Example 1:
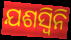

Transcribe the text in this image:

ଯଶସ୍ୱିନି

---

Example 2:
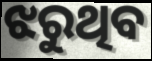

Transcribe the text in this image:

ଝରୁଥିବ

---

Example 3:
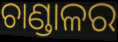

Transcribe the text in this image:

ଚାଣ୍ଡାଳର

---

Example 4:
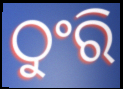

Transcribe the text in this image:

ଠୁଂରି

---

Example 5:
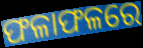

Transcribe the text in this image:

ଫଳାଫଳରେ